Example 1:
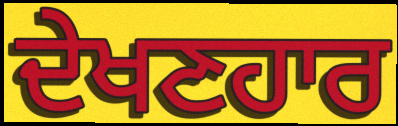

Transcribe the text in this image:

ਦੇਖਣਹਾਰ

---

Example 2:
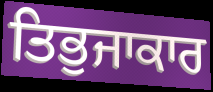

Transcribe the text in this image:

ਤਿਭੁਜਾਕਾਰ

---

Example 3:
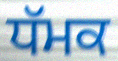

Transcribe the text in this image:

ਧੱਮਕ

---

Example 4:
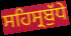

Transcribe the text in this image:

ਸਹਿਸ੍ਰਬੁੱਧੇ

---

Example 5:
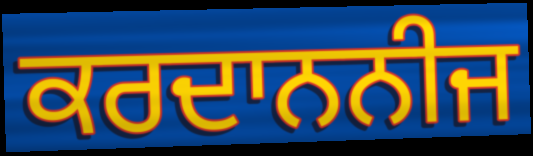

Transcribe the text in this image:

ਕਰਦਾਨਨੀਜ